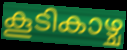
കൂടികാഴ്ച